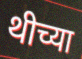
थीच्या